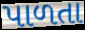
પાળતા